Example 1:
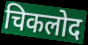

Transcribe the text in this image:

चिकलोद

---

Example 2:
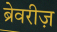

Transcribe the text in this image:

ब्रेवरीज़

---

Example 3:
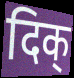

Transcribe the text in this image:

दिक्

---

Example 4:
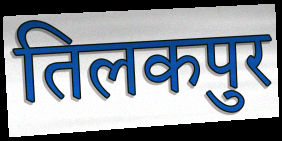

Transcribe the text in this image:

तिलकपुर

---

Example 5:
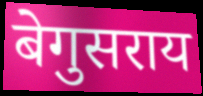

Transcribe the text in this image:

बेगुसराय